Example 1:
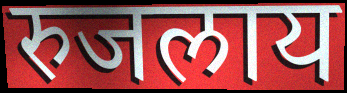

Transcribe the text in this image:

रुजलाय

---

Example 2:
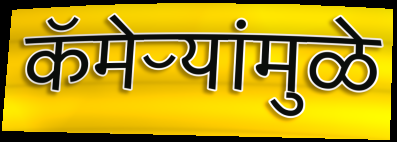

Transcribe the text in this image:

कॅमेऱ्यांमुळे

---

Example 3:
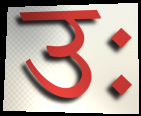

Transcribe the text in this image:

उः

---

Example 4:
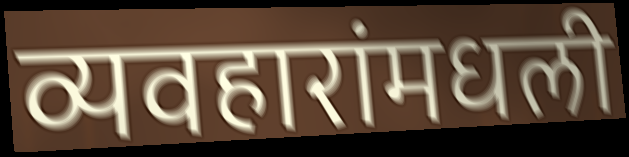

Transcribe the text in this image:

व्यवहारांमधली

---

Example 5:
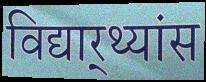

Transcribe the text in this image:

विद्यार्थ्यांस